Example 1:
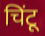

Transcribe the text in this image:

चिंटू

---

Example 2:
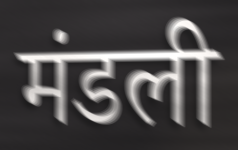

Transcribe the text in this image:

मंडली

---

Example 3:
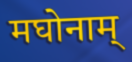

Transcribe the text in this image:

मघोनाम्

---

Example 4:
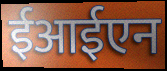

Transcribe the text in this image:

ईआईएन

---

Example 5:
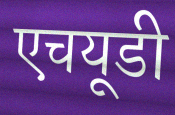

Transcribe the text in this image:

एचयूडी